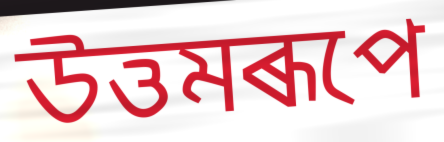
উত্তমৰূপে